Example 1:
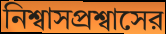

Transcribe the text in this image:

নিশ্বাসপ্রশ্বাসের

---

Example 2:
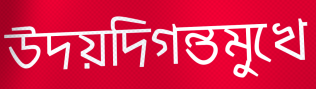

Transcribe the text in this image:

উদয়দিগন্তমুখে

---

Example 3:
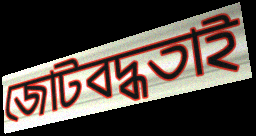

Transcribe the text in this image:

জোটবদ্ধতাই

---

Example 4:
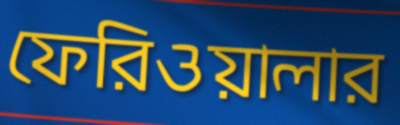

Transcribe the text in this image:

ফেরিওয়ালার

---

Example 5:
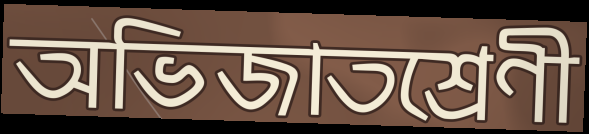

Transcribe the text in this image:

অভিজাতশ্রেণী